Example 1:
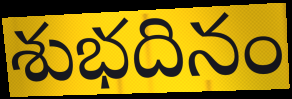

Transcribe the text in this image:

శుభదినం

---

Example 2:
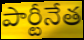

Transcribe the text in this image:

పార్టీనేత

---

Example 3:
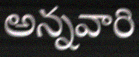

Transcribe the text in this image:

అన్నవారి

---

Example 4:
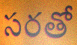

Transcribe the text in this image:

సరతో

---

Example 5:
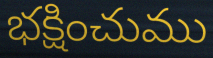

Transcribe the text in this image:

భక్షించుము